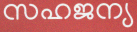
സഹജന്യ